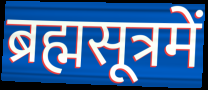
ब्रह्मसूत्रमें